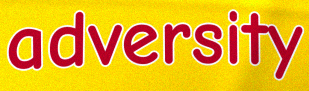
adversity